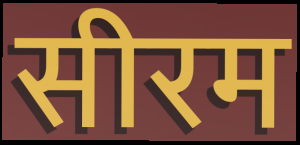
सीरम